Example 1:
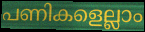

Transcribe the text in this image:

പണികളെല്ലാം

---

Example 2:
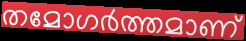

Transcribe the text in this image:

തമോഗർത്തമാണ്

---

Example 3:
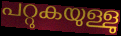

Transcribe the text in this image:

പറ്റുകയുള്ളു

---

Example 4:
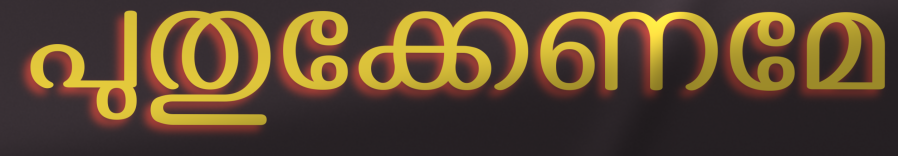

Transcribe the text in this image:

പുതുക്കേണമേ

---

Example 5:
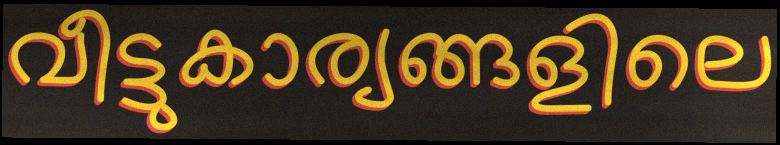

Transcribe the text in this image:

വീട്ടുകാര്യങ്ങളിലെ